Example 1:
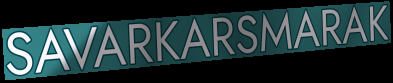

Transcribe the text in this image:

SAVARKARSMARAK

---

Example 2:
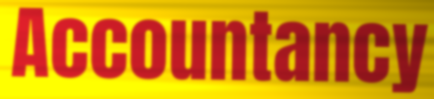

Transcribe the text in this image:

Accountancy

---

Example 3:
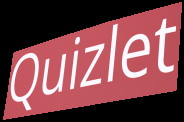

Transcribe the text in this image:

Quizlet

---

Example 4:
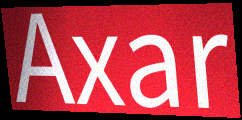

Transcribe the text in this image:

Axar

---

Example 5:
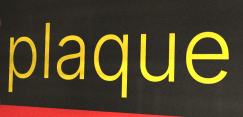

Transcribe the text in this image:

plaque